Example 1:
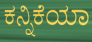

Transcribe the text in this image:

ಕನ್ನಿಕೆಯಾ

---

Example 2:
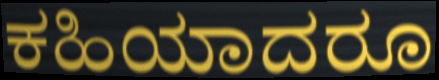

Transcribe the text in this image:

ಕಹಿಯಾದರೂ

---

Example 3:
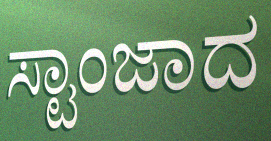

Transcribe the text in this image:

ಸ್ಟಾಂಜಾದ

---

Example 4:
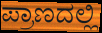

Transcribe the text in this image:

ಪ್ರಾಣದಲ್ಲಿ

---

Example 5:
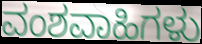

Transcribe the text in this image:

ವಂಶವಾಹಿಗಳು